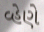
વ્હેણે